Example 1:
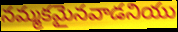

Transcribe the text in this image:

నమ్మకమైనవాడనియు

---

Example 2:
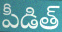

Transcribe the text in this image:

పీడిత్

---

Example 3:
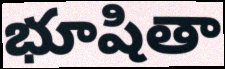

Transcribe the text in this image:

భూషితా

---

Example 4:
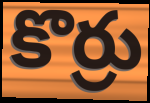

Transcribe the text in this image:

కొర్రు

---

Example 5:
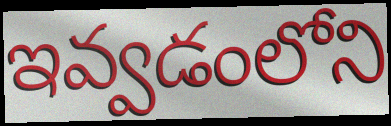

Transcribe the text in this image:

ఇవ్వడంలోని